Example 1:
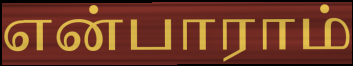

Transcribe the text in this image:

என்பாராம்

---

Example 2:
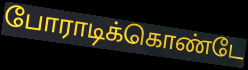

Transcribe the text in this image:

போராடிக்கொண்டே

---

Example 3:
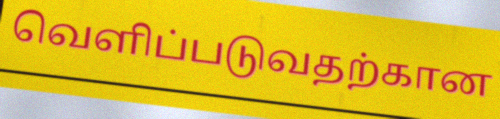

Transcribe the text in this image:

வெளிப்படுவதற்கான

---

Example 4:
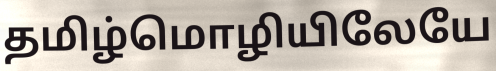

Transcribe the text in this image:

தமிழ்மொழியிலேயே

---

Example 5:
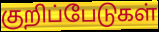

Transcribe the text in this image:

குறிப்பேடுகள்